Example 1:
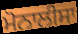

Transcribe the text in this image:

ਮੋਨਾਲੀਸਾ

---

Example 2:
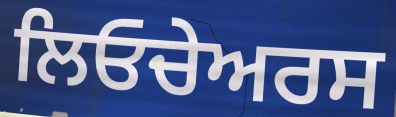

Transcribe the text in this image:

ਲਿਓਚੇਅਰਸ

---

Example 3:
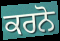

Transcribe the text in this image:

ਕਰਨੋ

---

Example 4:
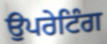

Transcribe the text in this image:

ਉਪਰੇਟਿੰਗ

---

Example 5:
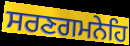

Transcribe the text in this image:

ਸਰਣਗਮਨੇਹਿ